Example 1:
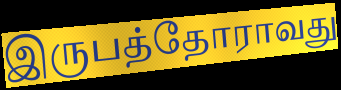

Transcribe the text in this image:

இருபத்தோராவது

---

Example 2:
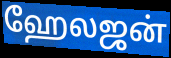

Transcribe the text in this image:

ஹேலஜன்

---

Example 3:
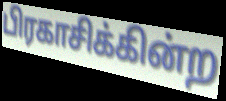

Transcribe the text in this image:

பிரகாசிக்கின்ற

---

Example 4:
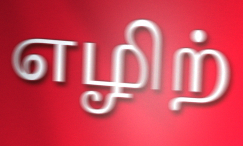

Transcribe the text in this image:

எழிற்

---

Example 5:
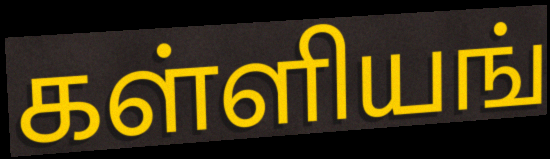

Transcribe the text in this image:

கள்ளியங்